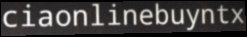
ciaonlinebuyntx